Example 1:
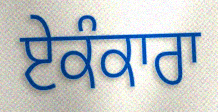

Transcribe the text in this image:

ਏਕੰਕਾਰਾ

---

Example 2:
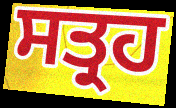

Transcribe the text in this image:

ਸਤ੍ਰਹ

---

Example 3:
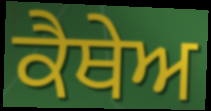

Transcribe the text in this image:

ਕੈਥੇਅ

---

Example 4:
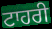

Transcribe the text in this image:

ਟਾਹਰੀ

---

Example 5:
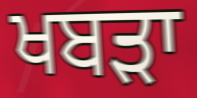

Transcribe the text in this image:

ਖਬੜਾ